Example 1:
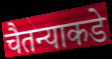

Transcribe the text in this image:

चैतन्याकडे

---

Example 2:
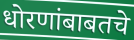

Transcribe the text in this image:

धोरणांबाबतचे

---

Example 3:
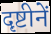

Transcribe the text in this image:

दृष्टीनें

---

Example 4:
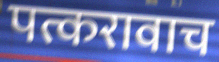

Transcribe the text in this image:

पत्करावाच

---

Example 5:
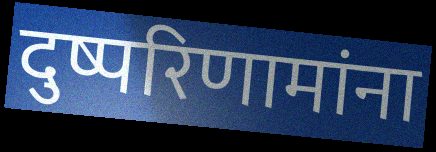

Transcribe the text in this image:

दुष्परिणामांना